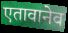
एतावानेव